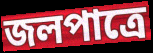
জলপাত্রে